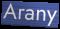
Arany